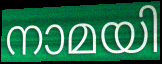
നാമയി